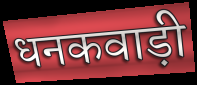
धनकवाड़ी